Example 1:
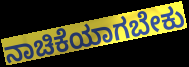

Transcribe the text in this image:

ನಾಚಿಕೆಯಾಗಬೇಕು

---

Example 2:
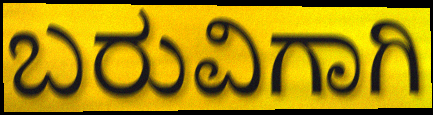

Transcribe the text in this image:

ಬರುವಿಗಾಗಿ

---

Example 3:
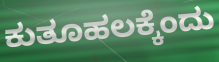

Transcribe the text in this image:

ಕುತೂಹಲಕ್ಕೆಂದು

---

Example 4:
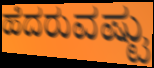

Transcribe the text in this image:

ಹೆದರುವಷ್ಟು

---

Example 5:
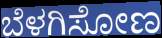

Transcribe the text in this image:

ಬೆಳಗಿಸೋಣ